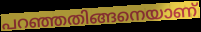
പറഞ്ഞതിങ്ങനെയാണ്